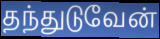
தந்துடுவேன்